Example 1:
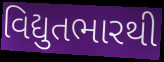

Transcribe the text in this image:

વિદ્યુતભારથી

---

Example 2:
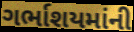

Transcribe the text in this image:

ગર્ભાશયમાંની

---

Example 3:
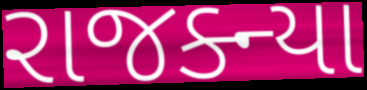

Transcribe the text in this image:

રાજક્ન્યા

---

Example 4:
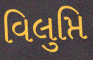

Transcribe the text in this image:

વિલુપ્તિ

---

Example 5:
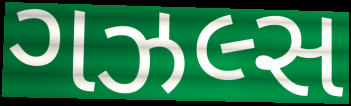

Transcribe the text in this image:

ગઝલ્સ